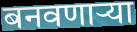
बनवणार्‍या